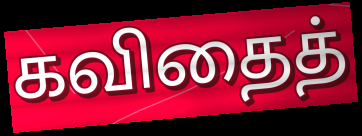
கவிதைத்